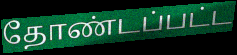
தோண்டப்பட்ட